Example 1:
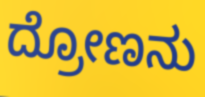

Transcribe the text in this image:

ದ್ರೋಣನು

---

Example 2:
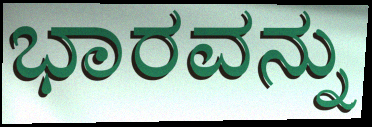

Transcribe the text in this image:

ಭಾರವನ್ನು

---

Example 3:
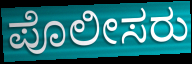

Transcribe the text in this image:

ಪೊಲೀಸರು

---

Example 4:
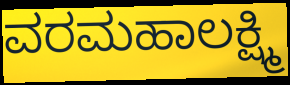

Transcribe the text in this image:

ವರಮಹಾಲಕ್ಷ್ಮಿ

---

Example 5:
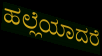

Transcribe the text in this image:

ಹಲ್ಲೆಯಾದರೆ